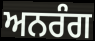
ਅਨਰੰਗ